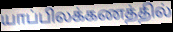
யாப்பிலக்கணத்தில்